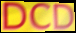
DCD